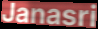
Janasri